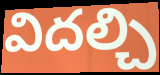
విదల్చి